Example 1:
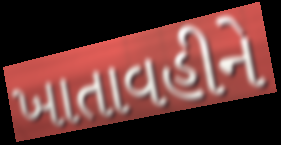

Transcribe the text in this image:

ખાતાવહીને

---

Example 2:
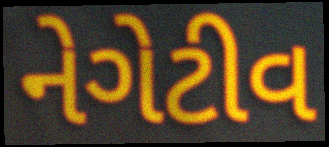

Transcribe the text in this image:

નેગેટીવ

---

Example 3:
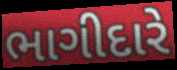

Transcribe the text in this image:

ભાગીદારે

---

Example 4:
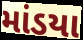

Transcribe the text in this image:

માંડયા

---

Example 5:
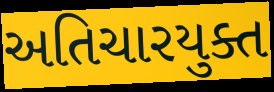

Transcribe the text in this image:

અતિચારયુક્ત